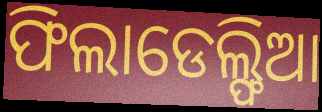
ଫିଲାଡେଲ୍ଫିଆ